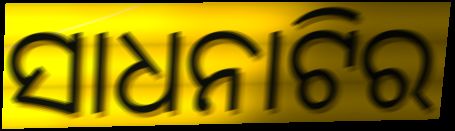
ସାଧନାଟିର